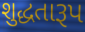
શુદ્ધતારૂપ